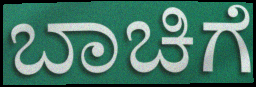
ಬಾಚಿಗೆ